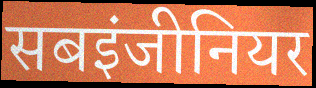
सबइंजीनियर